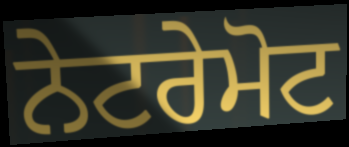
ਨੇਟਰੇਮੋਟ